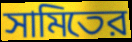
সামিতের